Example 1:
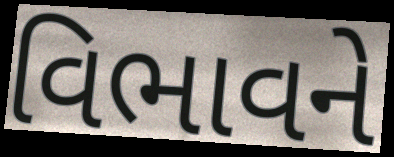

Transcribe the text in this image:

વિભાવને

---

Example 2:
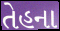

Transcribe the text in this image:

તેહના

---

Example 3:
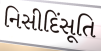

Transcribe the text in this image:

નિસીદિંસૂતિ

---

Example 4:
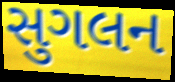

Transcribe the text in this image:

સુગલન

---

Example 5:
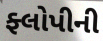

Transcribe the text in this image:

ફ્લોપીની